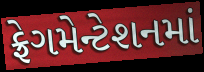
ફ્રેગમેન્ટેશનમાં